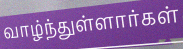
வாழ்ந்துள்ளார்கள்